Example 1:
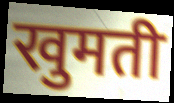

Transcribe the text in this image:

खुमती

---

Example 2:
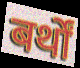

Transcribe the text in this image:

बर्थों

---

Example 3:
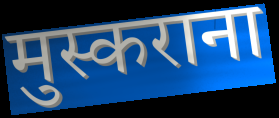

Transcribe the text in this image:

मुस्कराना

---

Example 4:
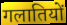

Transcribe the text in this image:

गलातियों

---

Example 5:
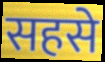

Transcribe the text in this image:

सहसे